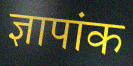
ज्ञापांक